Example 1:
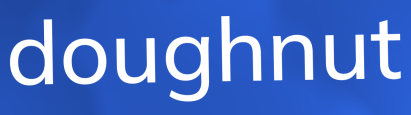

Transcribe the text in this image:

doughnut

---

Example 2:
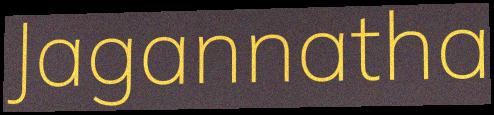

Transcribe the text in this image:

Jagannatha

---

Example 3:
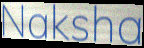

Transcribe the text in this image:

Naksha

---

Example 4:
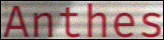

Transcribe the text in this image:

Anthes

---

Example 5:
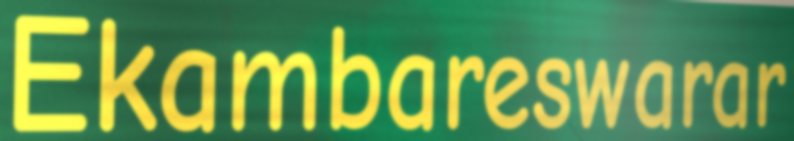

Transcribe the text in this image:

Ekambareswarar